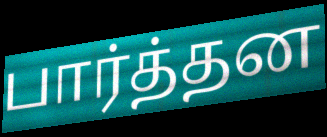
பார்த்தன